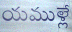
యముళ్లే